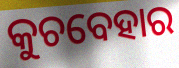
କୁଚବେହାର